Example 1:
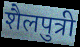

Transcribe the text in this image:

शैलपुत्री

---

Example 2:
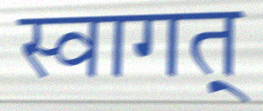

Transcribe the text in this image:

स्वागत्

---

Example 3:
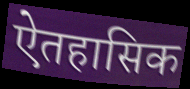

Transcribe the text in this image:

ऐतहासिक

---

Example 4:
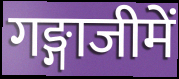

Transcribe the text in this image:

गङ्गाजीमें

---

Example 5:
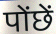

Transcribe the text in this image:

पोंछें